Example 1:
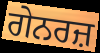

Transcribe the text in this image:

ਗੇਨਰਜ਼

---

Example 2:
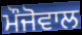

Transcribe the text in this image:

ਮੌਜੋਵਾਲ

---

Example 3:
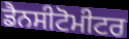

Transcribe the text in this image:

ਡੈਨਸੀਟੋਮੀਟਰ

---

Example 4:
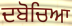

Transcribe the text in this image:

ਦਬੋਚਿਆ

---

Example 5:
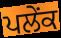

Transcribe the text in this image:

ਪਲੇਂਕ